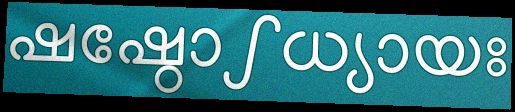
ഷഷ്ഠോഽധ്യായഃ